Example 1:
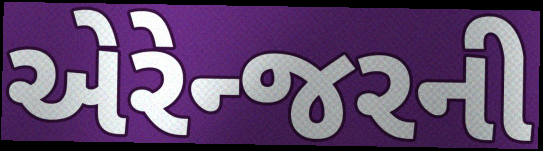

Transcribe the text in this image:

એરેન્જરની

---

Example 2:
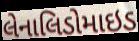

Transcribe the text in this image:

લેનાલિડોમાઇડ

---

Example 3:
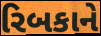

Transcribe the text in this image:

રિબકાને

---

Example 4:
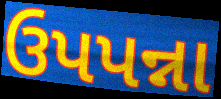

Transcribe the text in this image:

ઉપપન્ના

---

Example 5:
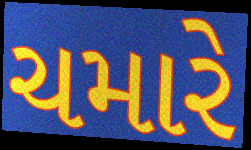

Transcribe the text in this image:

ચમારે